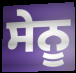
ਸੇਨੂ